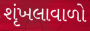
શૃંખલાવાળો